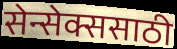
सेन्सेक्ससाठी